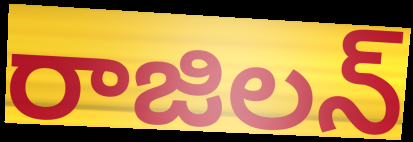
రాజిలన్